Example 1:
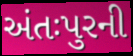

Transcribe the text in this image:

અંતઃપુરની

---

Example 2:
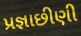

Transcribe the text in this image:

પ્રજ્ઞાછીણી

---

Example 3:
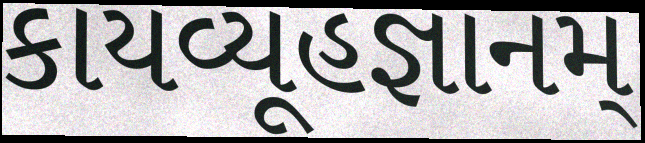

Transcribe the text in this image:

કાયવ્યૂહજ્ઞાનમ્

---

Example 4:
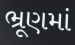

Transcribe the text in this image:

ભ્રૂણમાં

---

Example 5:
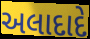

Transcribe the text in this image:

અલાદાદે